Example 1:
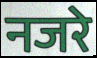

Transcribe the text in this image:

नजरे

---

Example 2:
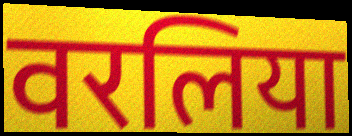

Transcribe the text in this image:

वरलिया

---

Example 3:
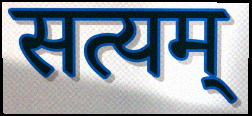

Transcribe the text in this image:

सत्यम्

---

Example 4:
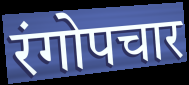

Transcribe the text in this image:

रंगोपचार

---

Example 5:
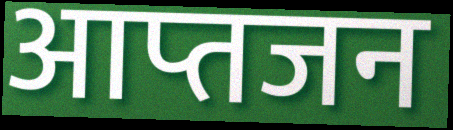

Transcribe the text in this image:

आप्तजन